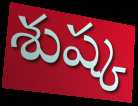
శుష్క